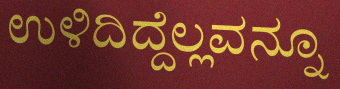
ಉಳಿದಿದ್ದೆಲ್ಲವನ್ನೂ